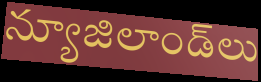
న్యూజిలాండ్‌లు